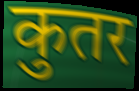
कुतर